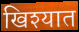
खिश्यात